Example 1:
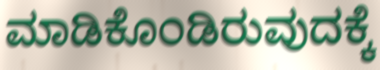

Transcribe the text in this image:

ಮಾಡಿಕೊಂಡಿರುವುದಕ್ಕೆ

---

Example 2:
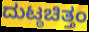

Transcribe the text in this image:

ದುಟ್ಠಚಿತ್ತಂ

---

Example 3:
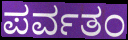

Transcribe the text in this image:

ಪರ್ವತಂ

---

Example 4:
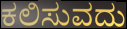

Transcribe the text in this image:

ಕಲಿಸುವದು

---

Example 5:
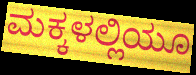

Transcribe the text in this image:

ಮಕ್ಕಳಲ್ಲಿಯೂ